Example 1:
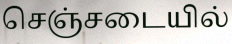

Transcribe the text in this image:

செஞ்சடையில்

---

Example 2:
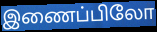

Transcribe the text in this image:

இணைப்பிலோ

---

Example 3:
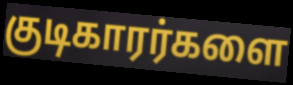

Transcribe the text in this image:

குடிகாரர்களை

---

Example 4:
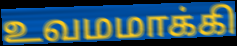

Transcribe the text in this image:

உவமமாக்கி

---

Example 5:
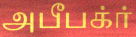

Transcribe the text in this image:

அபீபக்ர்